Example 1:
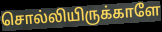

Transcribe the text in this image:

சொல்லியிருக்காளே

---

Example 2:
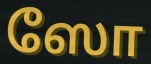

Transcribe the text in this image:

ஸோ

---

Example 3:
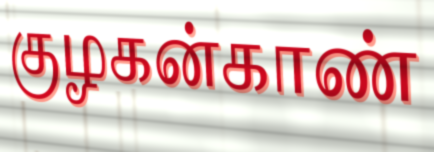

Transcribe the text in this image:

குழகன்காண்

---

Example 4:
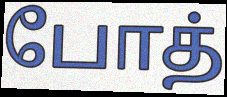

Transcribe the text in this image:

போத்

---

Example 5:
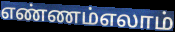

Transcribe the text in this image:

எண்ணம்எலாம்